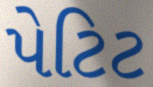
પેટિટ